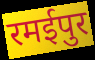
रमईपुर